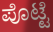
ಪೊಟ್ಟೆ